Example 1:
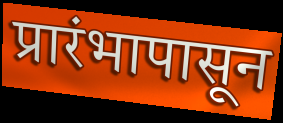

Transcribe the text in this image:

प्रारंभापासून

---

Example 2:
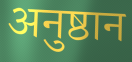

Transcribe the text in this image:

अनुष्ठान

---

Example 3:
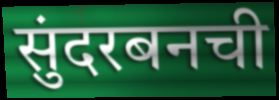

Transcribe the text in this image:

सुंदरबनची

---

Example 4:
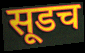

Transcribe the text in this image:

सूडच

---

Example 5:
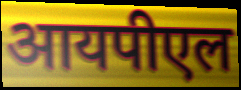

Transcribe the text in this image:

आयपीएल